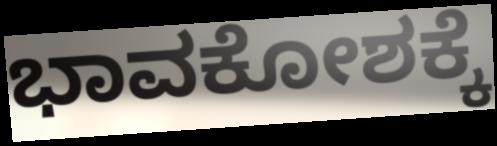
ಭಾವಕೋಶಕ್ಕೆ